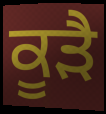
ਕੂੜੈ